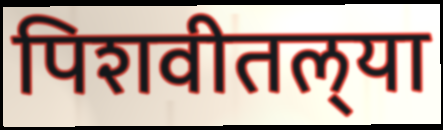
पिशवीतल्या